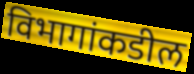
विभागांकडील